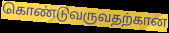
கொண்டுவருவதற்கான